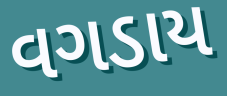
વગડાય